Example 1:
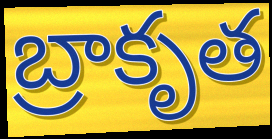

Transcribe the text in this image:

బ్రాకృత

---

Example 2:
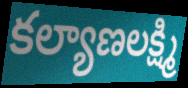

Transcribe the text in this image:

కల్యాణలక్ష్మి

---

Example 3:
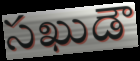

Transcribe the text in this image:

సఖుడౌ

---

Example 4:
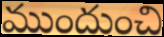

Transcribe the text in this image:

ముందుంచి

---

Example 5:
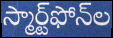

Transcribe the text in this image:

స్మార్ట్‌ఫోన్‌ల